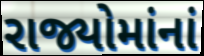
રાજ્યોમાંનાં